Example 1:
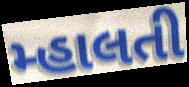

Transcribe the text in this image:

મ્હાલતી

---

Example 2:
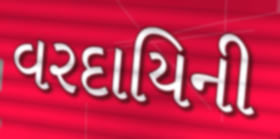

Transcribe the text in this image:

વરદાયિની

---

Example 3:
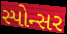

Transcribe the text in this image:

સ્પોન્સર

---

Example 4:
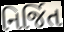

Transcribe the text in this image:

નિર્જિત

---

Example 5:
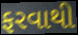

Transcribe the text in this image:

ફરવાથી